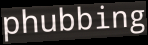
phubbing